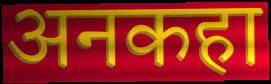
अनकहा